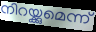
നിറയ്ക്കുമെന്ന്